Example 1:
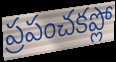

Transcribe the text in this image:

ప్రపంచకప్లో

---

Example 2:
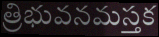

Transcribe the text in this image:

త్రిభువనమస్తక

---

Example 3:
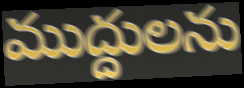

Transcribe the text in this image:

ముద్దులను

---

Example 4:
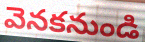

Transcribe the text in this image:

వెనకనుండి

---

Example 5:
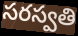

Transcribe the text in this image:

సరస్వతి